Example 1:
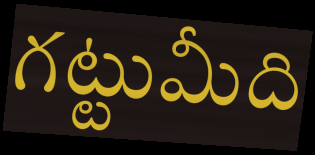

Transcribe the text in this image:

గట్టుమీది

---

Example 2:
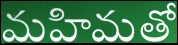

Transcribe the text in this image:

మహిమతో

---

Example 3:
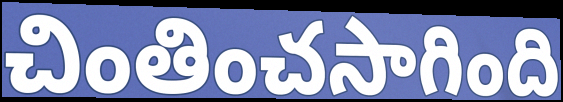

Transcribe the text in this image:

చింతించసాగింది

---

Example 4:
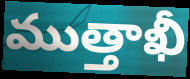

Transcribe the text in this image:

ముత్తాఖీ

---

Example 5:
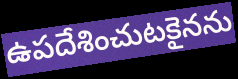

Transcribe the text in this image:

ఉపదేశించుటకైనను